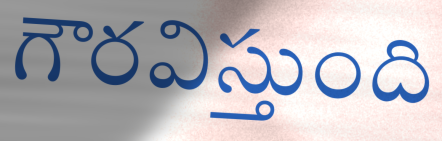
గౌరవిస్తుంది